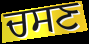
ਚਸਣ